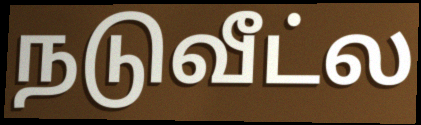
நடுவீட்ல